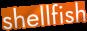
shellfish